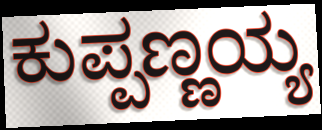
ಕುಪ್ಪಣ್ಣಯ್ಯ